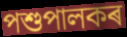
পশুপালকৰ